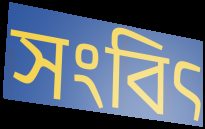
সংবিৎ